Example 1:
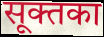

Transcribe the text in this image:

सूक्तका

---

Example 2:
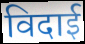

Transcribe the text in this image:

विदाई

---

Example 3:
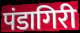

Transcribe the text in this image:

पंडागिरी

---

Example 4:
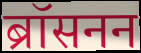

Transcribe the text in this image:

ब्रॉसनन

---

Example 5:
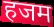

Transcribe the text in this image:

हजम